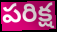
పరిక్ష